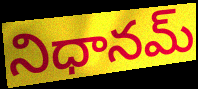
నిధానమ్